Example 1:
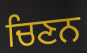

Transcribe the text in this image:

ਚਿਣਨ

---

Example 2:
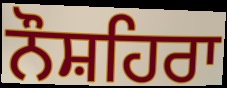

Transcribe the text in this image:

ਨੌਸ਼ਹਿਰਾ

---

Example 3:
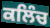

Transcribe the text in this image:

ਕਲਿੰਚ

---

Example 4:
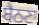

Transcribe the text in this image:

ਬੈਠਣਾ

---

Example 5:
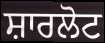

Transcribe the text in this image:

ਸ਼ਾਰਲੋਟ